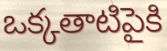
ఒక్కతాటిపైకి